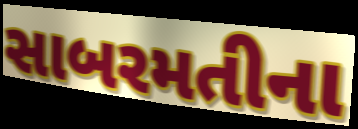
સાબરમતીના